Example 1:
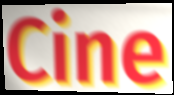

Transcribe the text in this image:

Cine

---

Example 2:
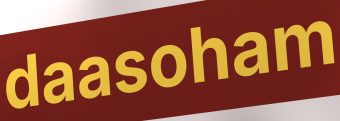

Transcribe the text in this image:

daasoham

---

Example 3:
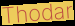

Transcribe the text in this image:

Thodar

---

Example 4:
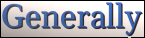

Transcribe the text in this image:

Generally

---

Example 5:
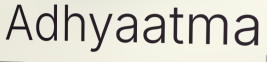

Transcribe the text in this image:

Adhyaatma